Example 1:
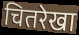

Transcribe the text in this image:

चितरेखा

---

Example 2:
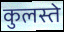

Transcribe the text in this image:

कुलस्ते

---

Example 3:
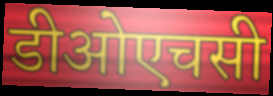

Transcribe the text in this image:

डीओएचसी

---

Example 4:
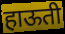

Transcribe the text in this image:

हाऊती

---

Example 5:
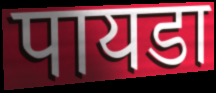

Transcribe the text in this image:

पायडा